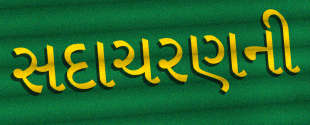
સદાચરણની